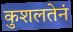
कुशलतेनं